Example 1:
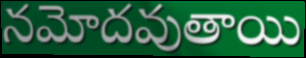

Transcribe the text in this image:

నమోదవుతాయి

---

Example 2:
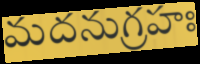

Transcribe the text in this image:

మదనుగ్రహః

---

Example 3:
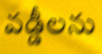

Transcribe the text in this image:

వడ్డీలను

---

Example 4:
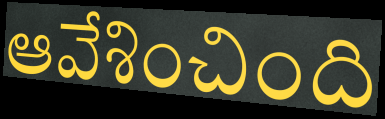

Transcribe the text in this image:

ఆవేశించింది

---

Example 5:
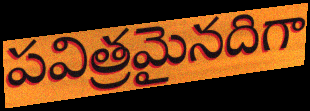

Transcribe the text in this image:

పవిత్రమైనదిగా